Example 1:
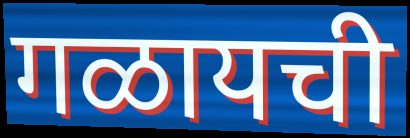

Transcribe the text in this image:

गळायची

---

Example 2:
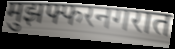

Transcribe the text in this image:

मुझफ्फरनगरात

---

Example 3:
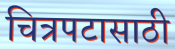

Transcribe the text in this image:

चित्रपटासाठी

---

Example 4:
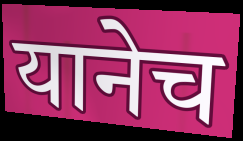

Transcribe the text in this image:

यानेच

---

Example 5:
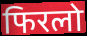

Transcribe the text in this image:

फिरलो